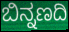
ಬಿನ್ನಣದಿ